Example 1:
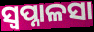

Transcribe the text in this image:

ସ୍ୱପ୍ନାଳସା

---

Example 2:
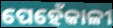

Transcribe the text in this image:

ପେହେଁକାଳୀ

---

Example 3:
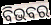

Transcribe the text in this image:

ବିଭବର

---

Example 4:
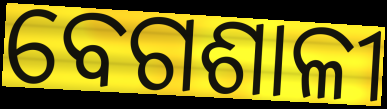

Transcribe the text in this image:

ବେଗଶାଳୀ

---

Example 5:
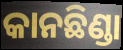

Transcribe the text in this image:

କାନଛିଣ୍ଡା